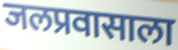
जलप्रवासाला